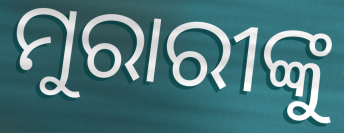
ମୁରାରୀଙ୍କୁ